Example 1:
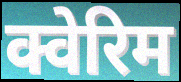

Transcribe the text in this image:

क्वेरिम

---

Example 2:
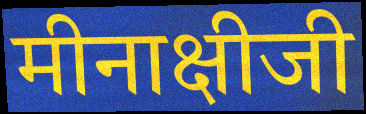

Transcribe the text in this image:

मीनाक्षीजी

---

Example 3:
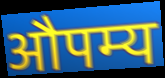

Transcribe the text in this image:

औपम्य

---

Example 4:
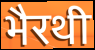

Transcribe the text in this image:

भैरथी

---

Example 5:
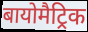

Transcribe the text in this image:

बायोमैट्रिक